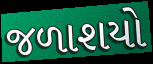
જળાશયો